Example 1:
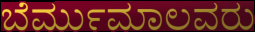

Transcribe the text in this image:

ಬೆರ್ಮುಮಾಲವರು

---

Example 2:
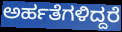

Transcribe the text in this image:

ಅರ್ಹತೆಗಳಿದ್ದರೆ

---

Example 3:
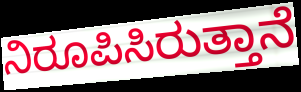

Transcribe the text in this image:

ನಿರೂಪಿಸಿರುತ್ತಾನೆ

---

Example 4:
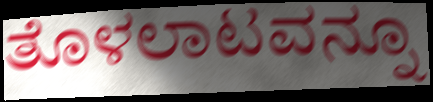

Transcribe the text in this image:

ತೊಳಲಾಟವನ್ನೂ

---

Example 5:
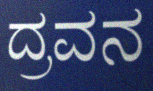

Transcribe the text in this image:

ದ್ರವನ